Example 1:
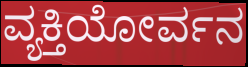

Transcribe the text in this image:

ವ್ಯಕ್ತಿಯೋರ್ವನ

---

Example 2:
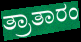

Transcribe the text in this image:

ತ್ರಾತಾರಂ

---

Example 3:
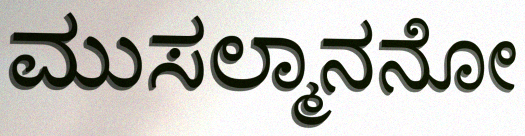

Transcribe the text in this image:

ಮುಸಲ್ಮಾನನೋ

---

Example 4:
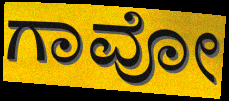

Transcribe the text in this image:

ಗಾವೋ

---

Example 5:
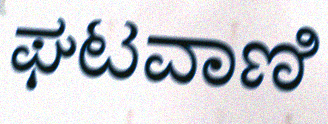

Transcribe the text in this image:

ಘಟವಾಣಿ